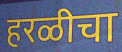
हरळीचा